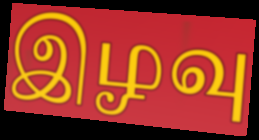
இழவு